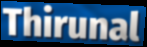
Thirunal